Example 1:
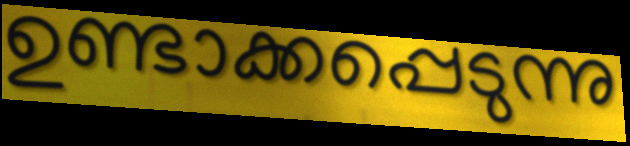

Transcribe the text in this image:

ഉണ്ടാക്കപ്പെടുന്നു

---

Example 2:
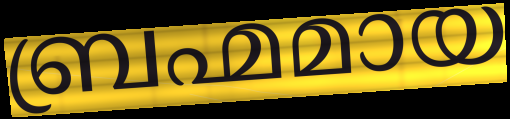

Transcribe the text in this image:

ബ്രഹ്മമായ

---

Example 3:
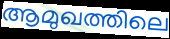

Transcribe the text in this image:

ആമുഖത്തിലെ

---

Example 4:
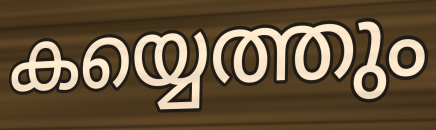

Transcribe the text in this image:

കയ്യെത്തും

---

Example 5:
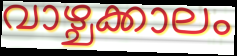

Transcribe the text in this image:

വാഴ്ചക്കാലം